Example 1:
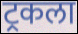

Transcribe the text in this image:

ट्रकला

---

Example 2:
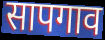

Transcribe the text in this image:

सापगाव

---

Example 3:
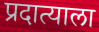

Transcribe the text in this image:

प्रदात्याला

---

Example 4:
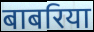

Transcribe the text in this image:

बाबरिया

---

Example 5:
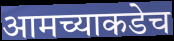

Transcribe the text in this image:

आमच्याकडेच